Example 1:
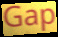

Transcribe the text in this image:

Gap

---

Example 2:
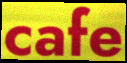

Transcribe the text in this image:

cafe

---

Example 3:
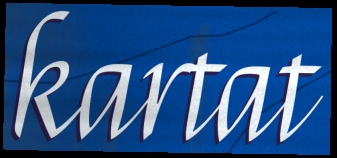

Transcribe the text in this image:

kartat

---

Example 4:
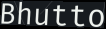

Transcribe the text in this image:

Bhutto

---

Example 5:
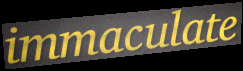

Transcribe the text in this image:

immaculate